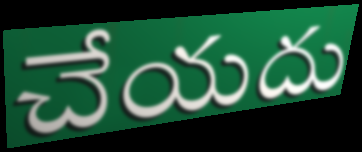
చేయదు